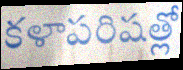
కళాపరిషత్లో